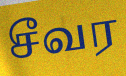
சீவர